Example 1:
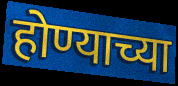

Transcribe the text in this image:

होण्‍याच्‍या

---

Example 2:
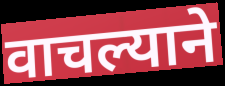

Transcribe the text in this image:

वाचल्याने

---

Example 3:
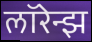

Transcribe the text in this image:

लॉरेन्झ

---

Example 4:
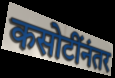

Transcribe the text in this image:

कसोटींनंतर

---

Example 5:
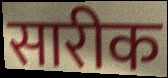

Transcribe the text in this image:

सारीक